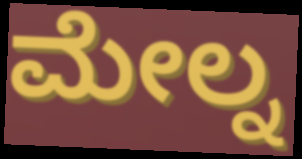
ಮೇಲ್ನ